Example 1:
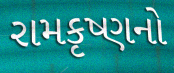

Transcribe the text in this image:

રામકૃષ્ણનો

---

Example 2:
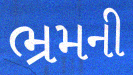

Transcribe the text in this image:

ભ્રમની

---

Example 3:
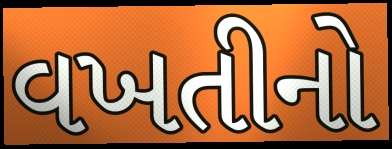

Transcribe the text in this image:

વખતીનો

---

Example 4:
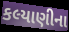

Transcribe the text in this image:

કલ્યાણીના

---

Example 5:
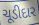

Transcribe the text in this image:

ચૂડીદાર